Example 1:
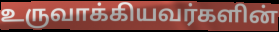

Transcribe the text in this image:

உருவாக்கியவர்களின்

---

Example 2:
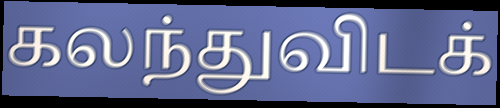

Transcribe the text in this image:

கலந்துவிடக்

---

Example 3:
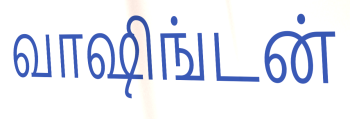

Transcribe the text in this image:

வாஷிங்டன்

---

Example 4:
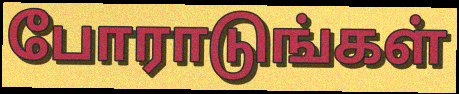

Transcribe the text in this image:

போராடுங்கள்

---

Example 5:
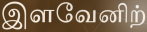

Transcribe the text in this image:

இளவேனிற்